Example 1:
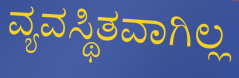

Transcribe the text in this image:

ವ್ಯವಸ್ಥಿತವಾಗಿಲ್ಲ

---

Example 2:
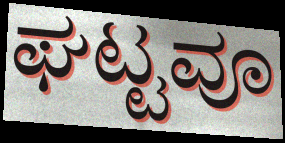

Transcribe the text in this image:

ಘಟ್ಟವೂ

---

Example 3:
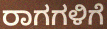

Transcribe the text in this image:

ರಾಗಗಳಿಗೆ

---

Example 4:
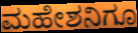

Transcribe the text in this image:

ಮಹೇಶನಿಗೂ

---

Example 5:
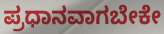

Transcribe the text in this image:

ಪ್ರಧಾನವಾಗಬೇಕೇ